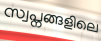
സ്വപ്നങ്ങളിലെ